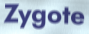
Zygote